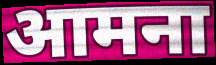
आमना